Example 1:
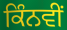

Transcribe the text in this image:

ਕਿੰਨਵੀਂ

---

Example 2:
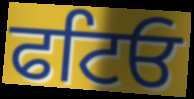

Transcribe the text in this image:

ਫਟਿਓ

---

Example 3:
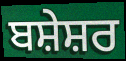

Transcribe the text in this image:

ਬਸ਼ੇਸ਼ਰ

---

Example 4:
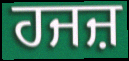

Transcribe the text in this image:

ਹਜਜ਼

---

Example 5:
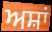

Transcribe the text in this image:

ਅਸ਼ਾਂ